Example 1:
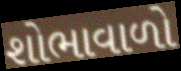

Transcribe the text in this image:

શોભાવાળો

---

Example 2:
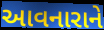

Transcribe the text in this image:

આવનારાને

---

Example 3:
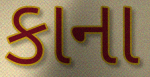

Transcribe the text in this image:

કાના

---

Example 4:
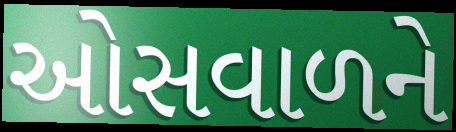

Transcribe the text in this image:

ઓસવાળને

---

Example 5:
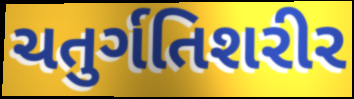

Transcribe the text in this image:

ચતુર્ગતિશરીર